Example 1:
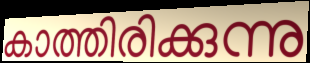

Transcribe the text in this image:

കാത്തിരിക്കുന്നു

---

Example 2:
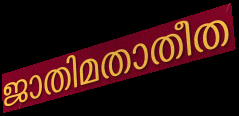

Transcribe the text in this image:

ജാതിമതാതീത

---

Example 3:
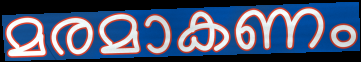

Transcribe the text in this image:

മരമാകണം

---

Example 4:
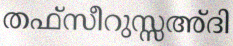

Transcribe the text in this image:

തഫ്സീറുസ്സഅ്ദി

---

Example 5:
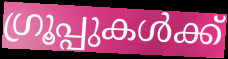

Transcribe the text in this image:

ഗ്രൂപ്പുകൾക്ക്